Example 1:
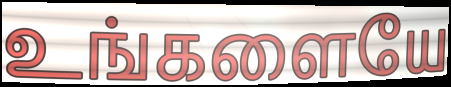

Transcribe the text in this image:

உங்களையே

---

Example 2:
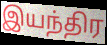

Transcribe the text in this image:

இயந்திர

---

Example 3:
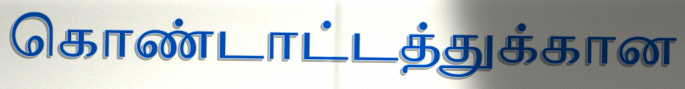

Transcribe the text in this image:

கொண்டாட்டத்துக்கான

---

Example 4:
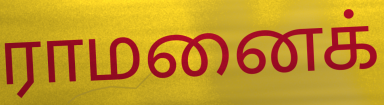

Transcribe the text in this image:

ராமனைக்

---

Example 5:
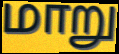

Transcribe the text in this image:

மாறு